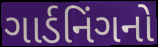
ગાર્ડનિંગનો